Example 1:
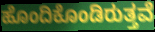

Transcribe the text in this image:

ಹೊಂದಿಕೊಂಡಿರುತ್ತವೆ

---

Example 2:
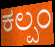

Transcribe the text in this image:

ಕಲ್ಪಂ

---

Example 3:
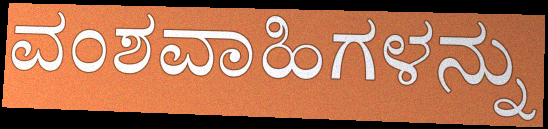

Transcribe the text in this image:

ವಂಶವಾಹಿಗಳನ್ನು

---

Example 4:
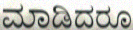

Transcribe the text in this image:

ಮಾಡಿದರೂ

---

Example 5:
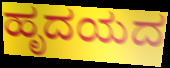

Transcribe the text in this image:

ಹೃದಯದ